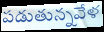
పడుతున్నవేళ